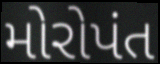
મોરોપંત